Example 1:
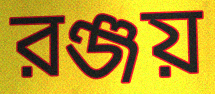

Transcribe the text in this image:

রঞ্জয়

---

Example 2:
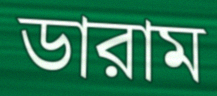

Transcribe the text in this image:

ডারাম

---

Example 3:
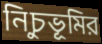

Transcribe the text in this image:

নিচুভূমির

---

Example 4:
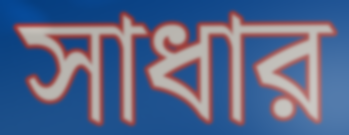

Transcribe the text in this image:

সাধার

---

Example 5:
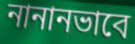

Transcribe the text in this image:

নানানভাবে